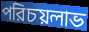
পরিচয়লাভ